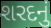
શરદનું